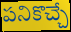
పనికొచ్చే